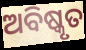
ଅବିଷ୍କୃତ